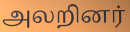
அலறினர்